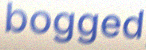
bogged